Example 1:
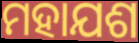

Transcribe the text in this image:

ମହାଯଶ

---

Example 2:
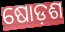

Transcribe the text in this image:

ଷୋଡ଼ଶ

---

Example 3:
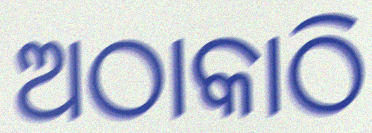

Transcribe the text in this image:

ଅଠାକାଠି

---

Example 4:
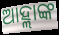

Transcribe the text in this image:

ଆହ୍ଲାଙ୍କ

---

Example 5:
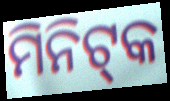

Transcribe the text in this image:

ମିନିଟ୍‍କ